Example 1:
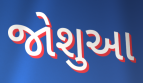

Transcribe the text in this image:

જોશુઆ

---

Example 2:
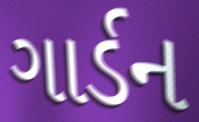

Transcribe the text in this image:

ગાર્ડન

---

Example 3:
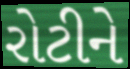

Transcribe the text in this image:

રોટીને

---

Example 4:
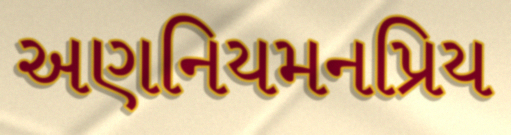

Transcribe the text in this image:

અણનિયમનપ્રિય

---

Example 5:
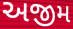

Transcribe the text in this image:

અજીમ